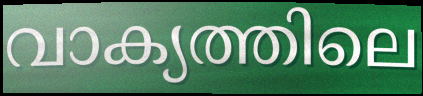
വാക്യത്തിലെ